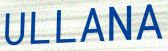
ULLANA